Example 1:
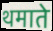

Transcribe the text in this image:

थमाते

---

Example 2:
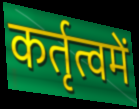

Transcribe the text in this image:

कर्तृत्वमें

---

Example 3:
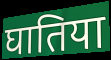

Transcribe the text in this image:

घातिया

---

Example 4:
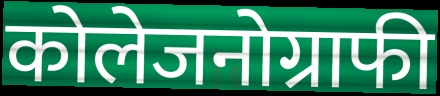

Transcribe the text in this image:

कोलेजनोग्राफी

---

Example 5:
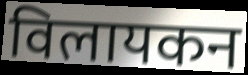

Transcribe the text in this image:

विलायकन